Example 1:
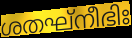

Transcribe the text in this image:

ശതഘ്നീഭിഃ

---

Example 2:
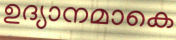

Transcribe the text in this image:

ഉദ്യാനമാകെ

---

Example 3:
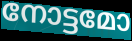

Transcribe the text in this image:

നോട്ടമോ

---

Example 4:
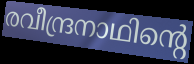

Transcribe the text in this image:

രവീന്ദ്രനാഥിന്റെ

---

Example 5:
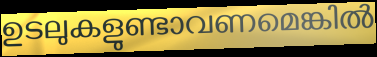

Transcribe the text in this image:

ഉടലുകളുണ്ടാവണമെങ്കിൽ